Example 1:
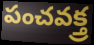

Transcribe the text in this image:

పంచవక్త్ర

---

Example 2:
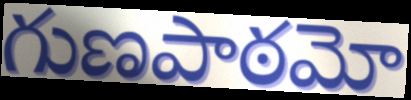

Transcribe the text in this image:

గుణపాఠమో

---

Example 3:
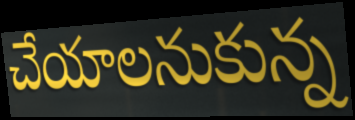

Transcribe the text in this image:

చేయాలనుకున్న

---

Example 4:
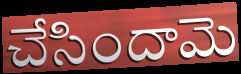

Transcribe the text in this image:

చేసిందామె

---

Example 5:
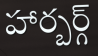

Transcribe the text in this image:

హార్బర్గ్